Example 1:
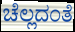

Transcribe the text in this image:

ಚೆಲ್ಲದಂತೆ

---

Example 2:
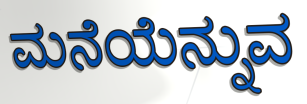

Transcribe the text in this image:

ಮನೆಯೆನ್ನುವ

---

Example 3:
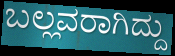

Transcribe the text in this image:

ಬಲ್ಲವರಾಗಿದ್ದು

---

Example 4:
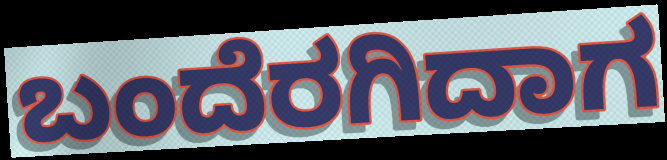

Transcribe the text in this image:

ಬಂದೆರಗಿದಾಗ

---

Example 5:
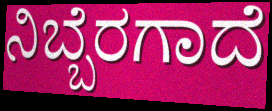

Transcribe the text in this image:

ನಿಬ್ಬೆರಗಾದೆ